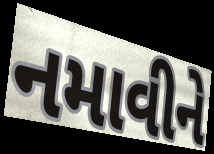
નમાવીને